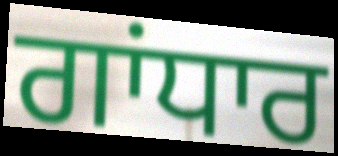
ਗਾਂਧਾਰ